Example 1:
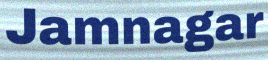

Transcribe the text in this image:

Jamnagar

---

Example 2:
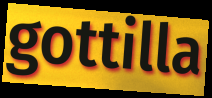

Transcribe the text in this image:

gottilla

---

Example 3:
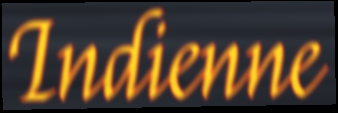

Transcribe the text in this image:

Indienne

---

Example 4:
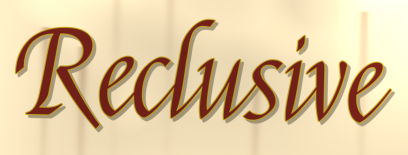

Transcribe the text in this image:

Reclusive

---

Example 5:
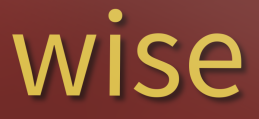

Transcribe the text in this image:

wise